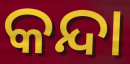
କନ୍ଦା